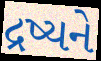
દ્રષ્યને